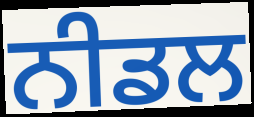
ਨੀਡਲ